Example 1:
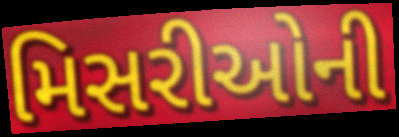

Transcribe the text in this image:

મિસરીઓની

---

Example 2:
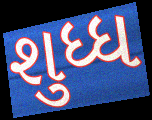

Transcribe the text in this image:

શુધ્ધ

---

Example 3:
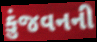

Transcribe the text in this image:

કુંજવનની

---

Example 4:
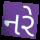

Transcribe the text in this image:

નરે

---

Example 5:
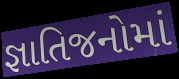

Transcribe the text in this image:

જ્ઞાતિજનોમાં